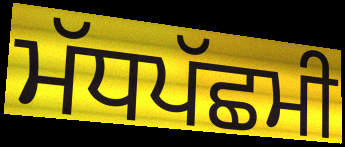
ਮੱਧਪੱਛਮੀ